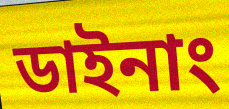
ডাইনাং